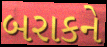
બરાકને